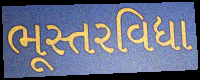
ભૂસ્તરવિદ્યા